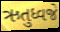
ઋતુધ્વજે